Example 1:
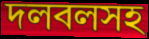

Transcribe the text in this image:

দলবলসহ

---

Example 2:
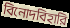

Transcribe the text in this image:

বিনোদবিহারি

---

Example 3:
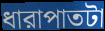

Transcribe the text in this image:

ধারাপাতটা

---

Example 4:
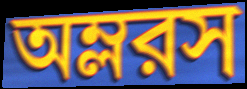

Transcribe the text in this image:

অম্লরস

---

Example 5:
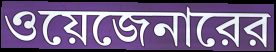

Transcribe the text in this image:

ওয়েজেনারের